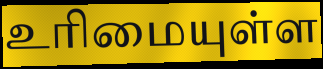
உரிமையுள்ள